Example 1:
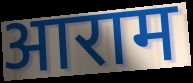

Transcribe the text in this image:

आराम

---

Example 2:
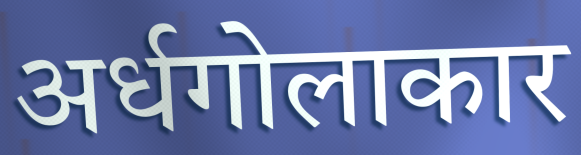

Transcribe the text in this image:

अर्धगोलाकार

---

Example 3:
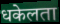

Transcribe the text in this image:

धकेलता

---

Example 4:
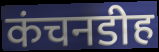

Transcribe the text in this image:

कंचनडीह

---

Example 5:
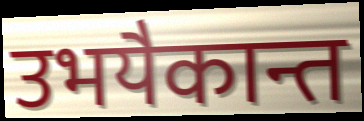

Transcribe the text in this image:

उभयैकान्त